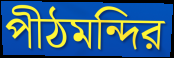
পীঠমন্দির